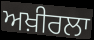
ਅਖ਼ੀਰਲਾ